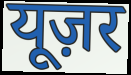
यूज़र